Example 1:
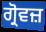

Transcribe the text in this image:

ਗ੍ਰੋਵਜ਼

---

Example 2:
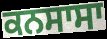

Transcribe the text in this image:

ਕਨਸਾਸਾ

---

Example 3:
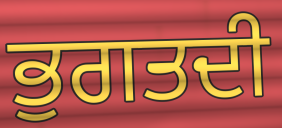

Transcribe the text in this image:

ਭੁਗਤਦੀ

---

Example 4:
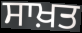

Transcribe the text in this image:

ਸਾਖ਼ਤ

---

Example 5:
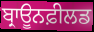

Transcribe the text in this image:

ਬ੍ਰਾਊਨਫ਼ੀਲਡ